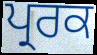
ਪ੍ਰਰਕ